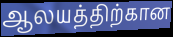
ஆலயத்திற்கான